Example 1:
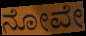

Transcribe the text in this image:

ನೋವೇ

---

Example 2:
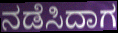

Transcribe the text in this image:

ನಡೆಸಿದಾಗ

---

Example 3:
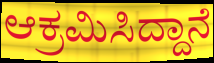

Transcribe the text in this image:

ಆಕ್ರಮಿಸಿದ್ದಾನೆ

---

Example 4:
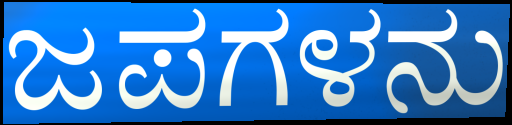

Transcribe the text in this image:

ಜಪಗಳನು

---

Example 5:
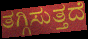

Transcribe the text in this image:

ತಗ್ಗಿಸುತ್ತದೆ